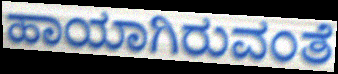
ಹಾಯಾಗಿರುವಂತೆ